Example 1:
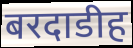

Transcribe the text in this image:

बरदाडीह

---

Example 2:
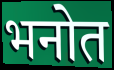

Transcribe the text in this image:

भनोत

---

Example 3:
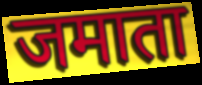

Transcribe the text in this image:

जमाता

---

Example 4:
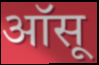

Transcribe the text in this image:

ऑसू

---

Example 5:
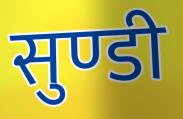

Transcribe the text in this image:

सुण्डी